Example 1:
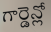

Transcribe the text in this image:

గార్డెన్లో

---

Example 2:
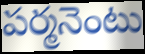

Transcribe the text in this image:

పర్మనెంటు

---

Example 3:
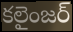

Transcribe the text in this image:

కలైంజర్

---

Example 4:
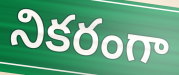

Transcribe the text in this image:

నికరంగా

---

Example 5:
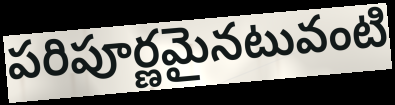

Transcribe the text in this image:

పరిపూర్ణమైనటువంటి